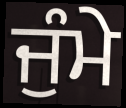
ਜੁੰਮੇ